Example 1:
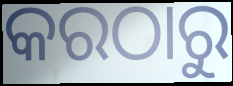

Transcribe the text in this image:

କରଠାରୁ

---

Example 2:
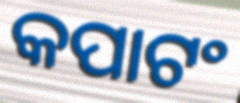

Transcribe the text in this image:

କପାଟଂ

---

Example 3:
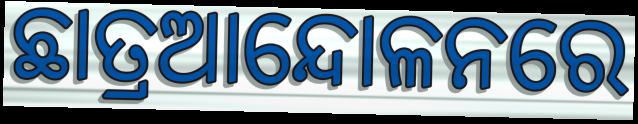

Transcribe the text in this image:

ଛାତ୍ରଆନ୍ଦୋଳନରେ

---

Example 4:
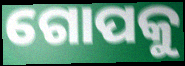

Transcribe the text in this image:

ଗୋପକୁ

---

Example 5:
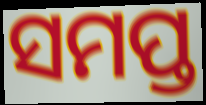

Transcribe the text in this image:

ସମପ୍ତ